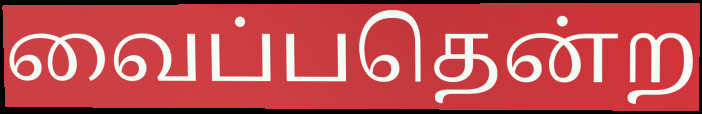
வைப்பதென்ற